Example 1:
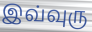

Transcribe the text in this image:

இவ்வுரு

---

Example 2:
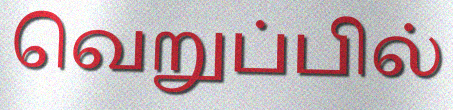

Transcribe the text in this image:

வெறுப்பில்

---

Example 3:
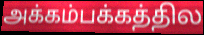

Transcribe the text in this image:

அக்கம்பக்கத்தில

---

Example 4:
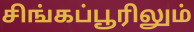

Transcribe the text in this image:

சிங்கப்பூரிலும்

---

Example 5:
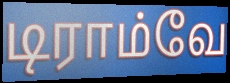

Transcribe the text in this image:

டிராம்வே